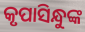
କୃପାସିନ୍ଧୁଙ୍କ